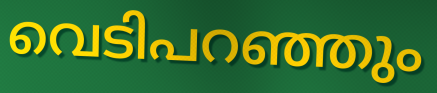
വെടിപറഞ്ഞും